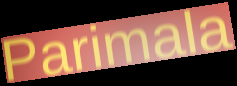
Parimala